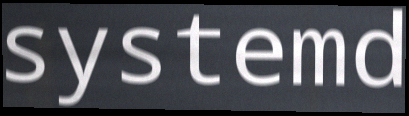
systemd